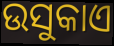
ଉସୁକାଏ